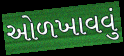
ઓળખાવવું